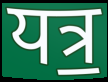
यत्र॒